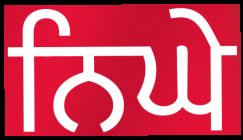
ਨਿਘੇ